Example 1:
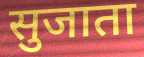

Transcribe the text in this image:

सुजाता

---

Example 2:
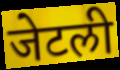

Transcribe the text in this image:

जेटली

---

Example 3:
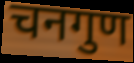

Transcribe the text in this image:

चनगुण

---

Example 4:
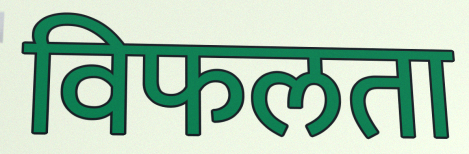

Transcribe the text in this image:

विफलता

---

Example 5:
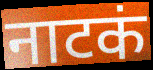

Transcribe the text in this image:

नाटकं